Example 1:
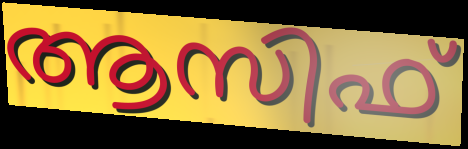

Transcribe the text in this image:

ആസിഫ്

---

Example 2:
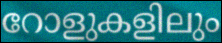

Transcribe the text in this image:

റോളുകളിലും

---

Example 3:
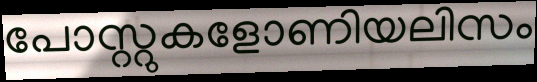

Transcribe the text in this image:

പോസ്റ്റുകളോണിയലിസം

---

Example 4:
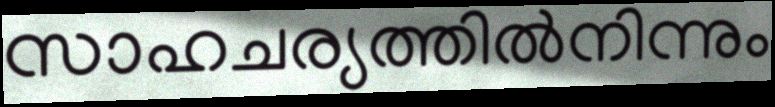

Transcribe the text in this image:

സാഹചര്യത്തിൽനിന്നും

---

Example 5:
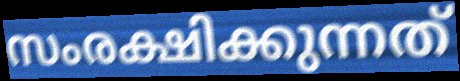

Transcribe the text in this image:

സംരക്ഷിക്കുന്നത്